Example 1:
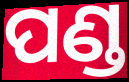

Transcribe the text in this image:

ପଣ୍ଡ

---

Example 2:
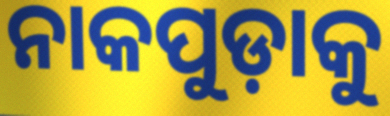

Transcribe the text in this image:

ନାକପୁଡ଼ାକୁ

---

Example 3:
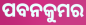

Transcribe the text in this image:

ପବନକୁମର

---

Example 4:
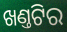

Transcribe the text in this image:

ଖଣ୍ତଟିର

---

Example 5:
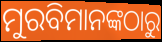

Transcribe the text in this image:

ମୁରବିମାନଙ୍କଠାରୁ